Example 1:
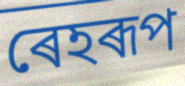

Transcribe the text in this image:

ৰেহৰূপ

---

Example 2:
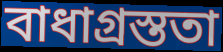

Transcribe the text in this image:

বাধাগ্ৰস্ততা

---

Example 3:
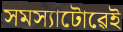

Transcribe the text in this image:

সমস্যাটোৱেই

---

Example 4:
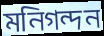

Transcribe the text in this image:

মনিগন্দন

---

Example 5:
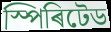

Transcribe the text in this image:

স্পিৰিটেড